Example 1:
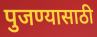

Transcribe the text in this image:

पुजण्यासाठी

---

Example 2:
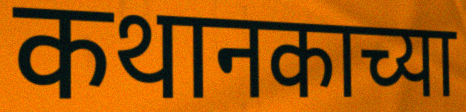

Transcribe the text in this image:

कथानकाच्या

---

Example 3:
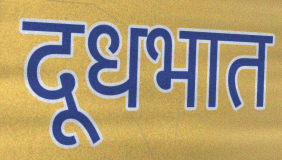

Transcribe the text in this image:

दूधभात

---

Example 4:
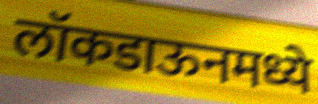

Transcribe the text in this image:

लॉकडाऊनमध्ये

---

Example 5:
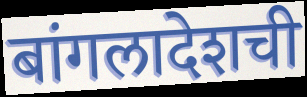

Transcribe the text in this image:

बांगलादेशची